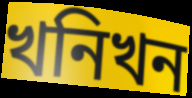
খনিখন